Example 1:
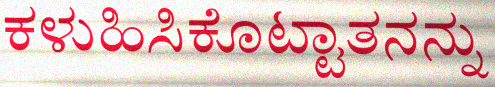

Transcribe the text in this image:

ಕಳುಹಿಸಿಕೊಟ್ಟಾತನನ್ನು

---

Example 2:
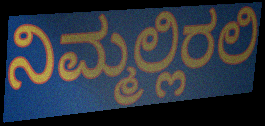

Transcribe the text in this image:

ನಿಮ್ಮಲ್ಲಿರಲಿ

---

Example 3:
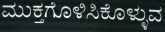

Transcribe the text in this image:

ಮುಕ್ತಗೊಳಿಸಿಕೊಳ್ಳುವ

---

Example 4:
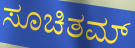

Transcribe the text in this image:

ಸೂಚಿತಮ್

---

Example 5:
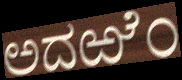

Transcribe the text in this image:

ಅದಱೆಂ